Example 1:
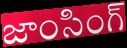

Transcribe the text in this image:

జాంసింగ్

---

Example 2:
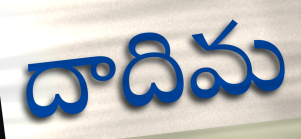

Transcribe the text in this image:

దాదిమ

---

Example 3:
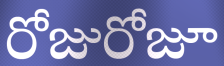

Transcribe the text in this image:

రోజురోజూ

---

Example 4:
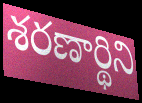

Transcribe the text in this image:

శరణార్థిని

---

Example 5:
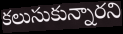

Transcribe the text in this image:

కలుసుకున్నారని